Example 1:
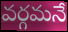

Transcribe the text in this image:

వర్గమనే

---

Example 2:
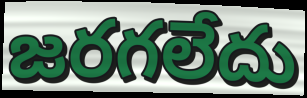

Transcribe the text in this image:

జరగలేదు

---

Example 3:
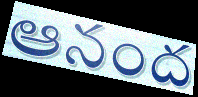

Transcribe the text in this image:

ఆనంద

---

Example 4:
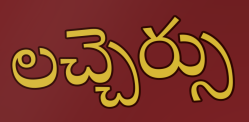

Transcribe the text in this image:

లచ్చెర్సు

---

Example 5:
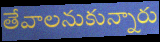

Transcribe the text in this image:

తేవాలనుకున్నారు